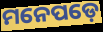
ମନେପଡ଼େ